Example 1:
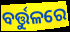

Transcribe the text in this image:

ବର୍ତ୍ତୁଳରେ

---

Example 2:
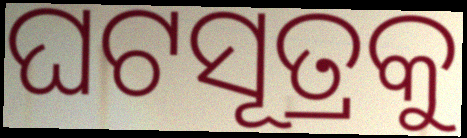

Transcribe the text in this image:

ଘଟସୂତ୍ରକୁ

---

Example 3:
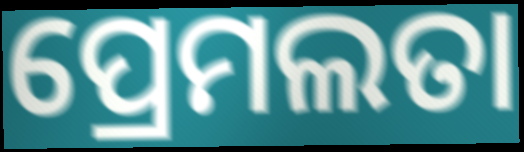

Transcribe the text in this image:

ପ୍ରେମଲତା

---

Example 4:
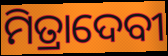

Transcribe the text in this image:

ମିତ୍ରାଦେବୀ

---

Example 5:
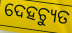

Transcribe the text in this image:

ଦେହଚ୍ୟୁତ